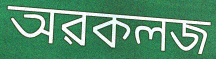
অৱকলজ